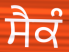
ਸੈਕੰ